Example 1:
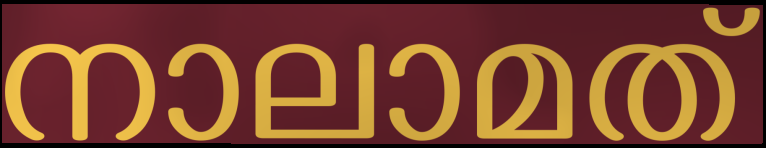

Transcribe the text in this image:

നാലാമത്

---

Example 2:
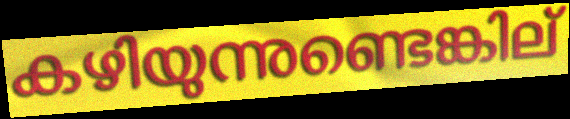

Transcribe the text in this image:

കഴിയുന്നുണ്ടെങ്കില്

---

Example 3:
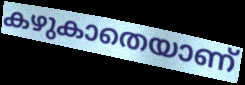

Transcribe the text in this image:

കഴുകാതെയാണ്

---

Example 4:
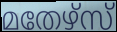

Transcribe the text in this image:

മതേഴ്സ്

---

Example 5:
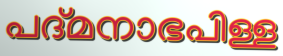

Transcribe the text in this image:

പദ്മനാഭപിള്ള